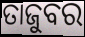
ତାଜୁବର